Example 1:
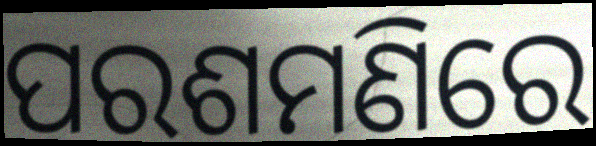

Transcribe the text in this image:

ପରଶମଣିରେ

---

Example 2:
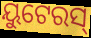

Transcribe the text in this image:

ୟୁଟେରସ୍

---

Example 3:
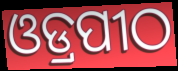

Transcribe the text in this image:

ଓଡ୍ରପୀଠ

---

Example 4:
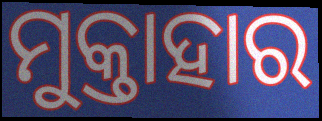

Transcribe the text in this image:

ମୁକ୍ତାହାର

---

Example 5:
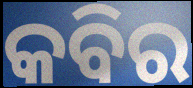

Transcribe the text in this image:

କବିର